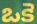
ఒకె